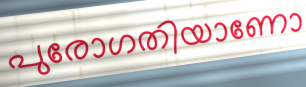
പുരോഗതിയാണോ